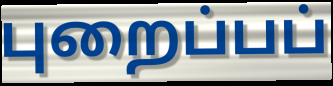
புறைப்பப்